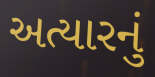
અત્યારનું